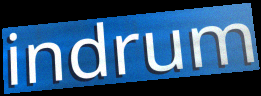
indrum